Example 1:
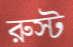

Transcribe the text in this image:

রুস্ট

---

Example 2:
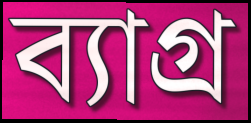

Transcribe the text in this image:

ব্যাগ্র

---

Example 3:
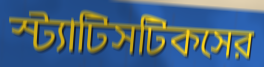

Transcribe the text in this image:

স্ট্যাটিসটিকসের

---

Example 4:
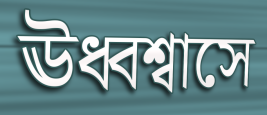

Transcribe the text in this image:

ঊধ্বশ্বাসে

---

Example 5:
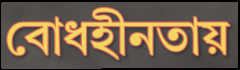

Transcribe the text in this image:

বোধহীনতায়